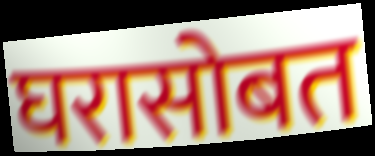
घरासोबत